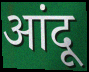
आंदू